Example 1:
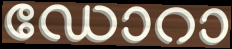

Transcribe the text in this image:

ഡോറാ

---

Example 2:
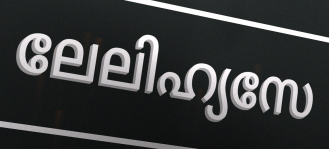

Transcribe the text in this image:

ലേലിഹ്യസേ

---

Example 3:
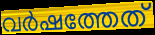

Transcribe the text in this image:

വർഷത്തേത്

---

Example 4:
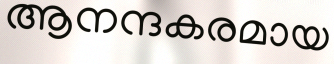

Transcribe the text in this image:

ആനന്ദകരമായ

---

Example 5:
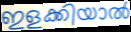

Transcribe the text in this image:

ഇളക്കിയാൽ